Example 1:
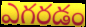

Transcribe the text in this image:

ఎగరడం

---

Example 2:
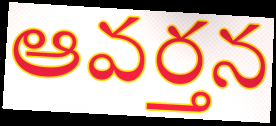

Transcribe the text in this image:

ఆవర్తన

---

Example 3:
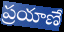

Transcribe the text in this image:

ప్రయాణే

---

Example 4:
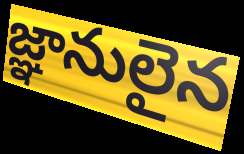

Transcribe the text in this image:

జ్ఞానులైన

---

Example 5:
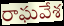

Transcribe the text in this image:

రాఘవేశ